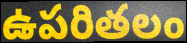
ఉపరితలం